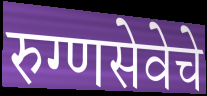
रुग्णसेवेचे